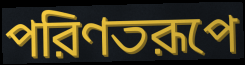
পরিণতরূপে